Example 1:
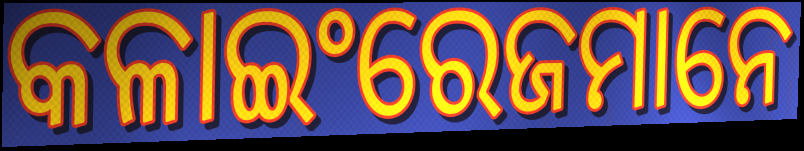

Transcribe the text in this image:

କଳାଇଂରେଜମାନେ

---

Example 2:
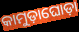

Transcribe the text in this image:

କାମୁଡ଼ାଘୋଡ଼ା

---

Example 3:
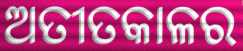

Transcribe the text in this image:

ଅତୀତକାଳର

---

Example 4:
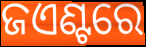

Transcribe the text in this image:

ଜଏଣ୍ଟରେ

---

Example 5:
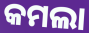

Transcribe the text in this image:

କମଲା